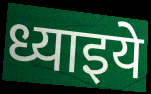
ध्याइये